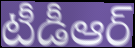
టీడీఆర్